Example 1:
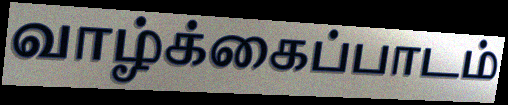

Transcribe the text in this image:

வாழ்க்கைப்பாடம்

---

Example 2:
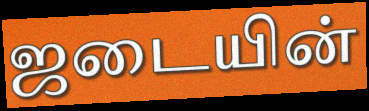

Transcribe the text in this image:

ஜடையின்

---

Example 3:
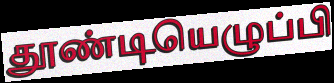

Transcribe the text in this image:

தூண்டியெழுப்பி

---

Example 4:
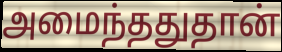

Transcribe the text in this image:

அமைந்ததுதான்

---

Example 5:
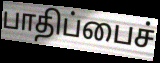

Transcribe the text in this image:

பாதிப்பைச்